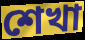
শেখা